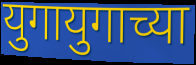
युगायुगाच्या